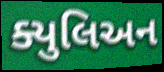
ક્યુલિઅન